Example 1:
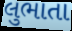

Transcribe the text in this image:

લુભાતા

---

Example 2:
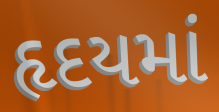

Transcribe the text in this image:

હૃદયમાં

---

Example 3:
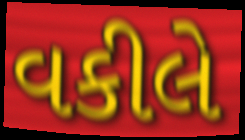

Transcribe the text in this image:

વકીલે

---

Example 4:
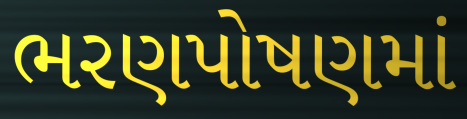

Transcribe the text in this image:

ભરણપોષણમાં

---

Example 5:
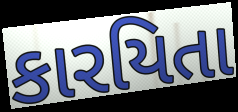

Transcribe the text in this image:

કારયિતા